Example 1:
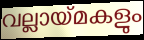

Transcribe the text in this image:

വല്ലായ്മകളും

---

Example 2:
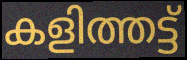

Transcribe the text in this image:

കളിത്തട്ട്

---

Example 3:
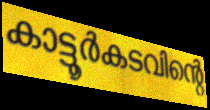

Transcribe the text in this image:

കാട്ടൂർകടവിന്റെ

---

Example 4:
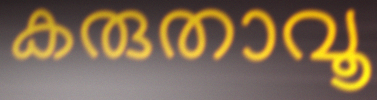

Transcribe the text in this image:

കരുതാവൂ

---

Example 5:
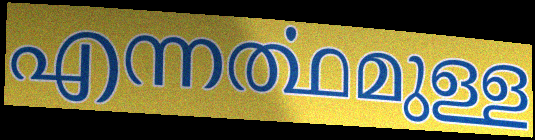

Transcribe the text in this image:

എന്നൎത്ഥമുള്ള